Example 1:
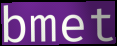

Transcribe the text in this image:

bmet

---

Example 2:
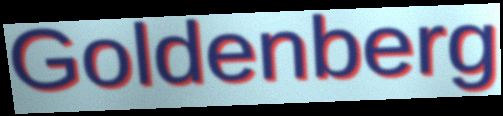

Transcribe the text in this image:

Goldenberg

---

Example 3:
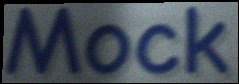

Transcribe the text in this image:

Mock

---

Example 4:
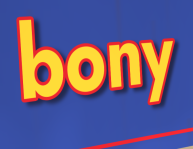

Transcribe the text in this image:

bony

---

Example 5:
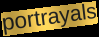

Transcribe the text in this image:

portrayals